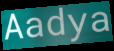
Aadya